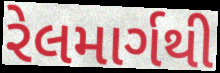
રેલમાર્ગથી